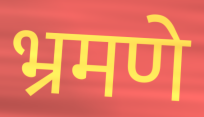
भ्रमणे